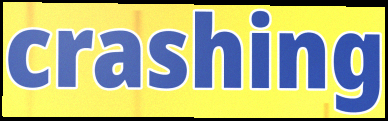
crashing